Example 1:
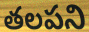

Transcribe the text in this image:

తలపని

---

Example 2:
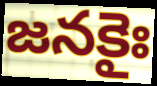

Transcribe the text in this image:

జనకైః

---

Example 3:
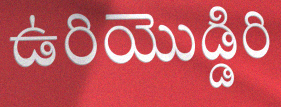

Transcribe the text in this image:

ఉరియొడ్డిరి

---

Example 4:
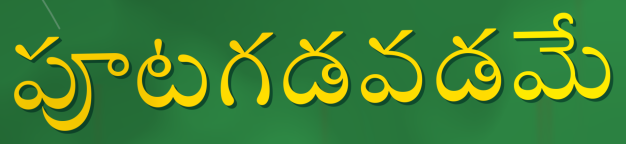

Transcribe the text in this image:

పూటగడవడమే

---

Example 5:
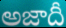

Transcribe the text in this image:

అజాదీ